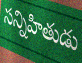
సన్నిహితుడు